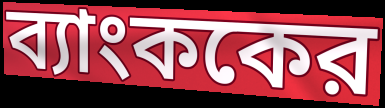
ব্যাংককের